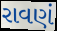
રાવણં